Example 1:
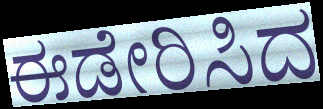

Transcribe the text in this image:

ಈಡೇರಿಸಿದ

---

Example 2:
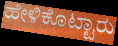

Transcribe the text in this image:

ಹೇಳಿಕೊಟ್ಟಾರು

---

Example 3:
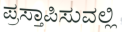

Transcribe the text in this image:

ಪ್ರಸ್ತಾಪಿಸುವಲ್ಲಿ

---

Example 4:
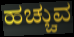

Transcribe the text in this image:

ಹಚ್ಚುವ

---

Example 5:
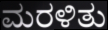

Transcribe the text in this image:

ಮರಳಿತು